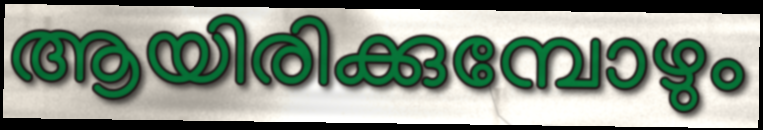
ആയിരിക്കുമ്പോഴും